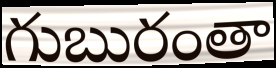
గుబురంతా